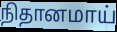
நிதானமாய்